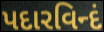
પદારવિન્દં